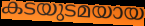
കടയുടമയായ